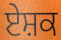
ਏਸ਼ਕ